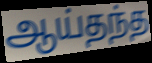
ஆய்தந்த